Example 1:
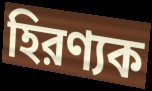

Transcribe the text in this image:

হিরণ্যক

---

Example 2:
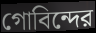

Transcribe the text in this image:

গোবিন্দের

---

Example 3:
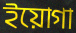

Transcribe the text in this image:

ইয়োগা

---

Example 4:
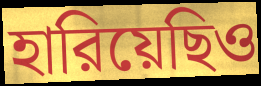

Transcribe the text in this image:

হারিয়েছিও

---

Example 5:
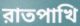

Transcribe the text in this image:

রাতপাখি